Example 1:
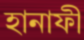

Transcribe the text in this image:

হানাফী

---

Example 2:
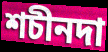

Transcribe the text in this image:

শচীনদা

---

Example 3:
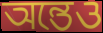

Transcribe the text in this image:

অন্তেও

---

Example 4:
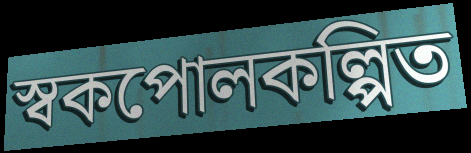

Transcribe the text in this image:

স্বকপোলকল্পিত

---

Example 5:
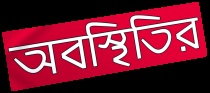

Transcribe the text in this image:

অবস্থিতির